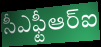
సీఎఫ్టీఆర్ఐ